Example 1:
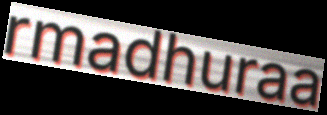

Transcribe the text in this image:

rmadhuraa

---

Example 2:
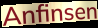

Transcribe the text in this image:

Anfinsen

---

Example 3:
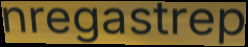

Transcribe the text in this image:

nregastrep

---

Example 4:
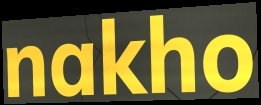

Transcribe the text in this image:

nakho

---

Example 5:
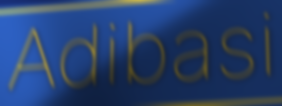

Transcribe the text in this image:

Adibasi